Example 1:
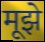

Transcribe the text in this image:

मूझे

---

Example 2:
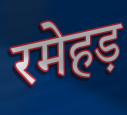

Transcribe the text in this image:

रमेहड़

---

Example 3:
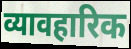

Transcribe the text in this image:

व्यावहारिक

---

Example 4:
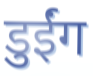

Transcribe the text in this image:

डुईंग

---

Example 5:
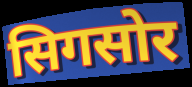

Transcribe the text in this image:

सिगसोर